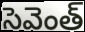
సెవెంత్